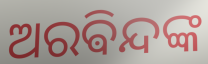
ଅରଵିନ୍ଦଙ୍କ